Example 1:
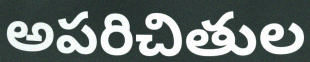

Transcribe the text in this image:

అపరిచితుల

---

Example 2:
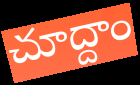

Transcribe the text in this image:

చూద్దాం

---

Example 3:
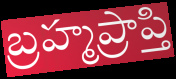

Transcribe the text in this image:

బ్రహ్మప్రాప్తి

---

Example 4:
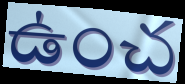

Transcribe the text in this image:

ఉంచ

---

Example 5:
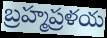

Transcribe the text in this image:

బ్రహ్మప్రళయ